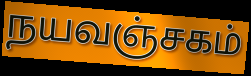
நயவஞ்சகம்